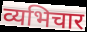
व्यभिचार